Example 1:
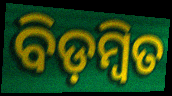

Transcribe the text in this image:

ବିଡ଼ମ୍ବିତ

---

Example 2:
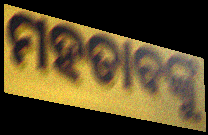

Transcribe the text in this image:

ମହତାବଙ୍କୁ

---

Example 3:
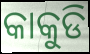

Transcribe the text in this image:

କାକୁଡି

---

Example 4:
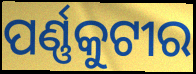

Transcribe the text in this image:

ପର୍ଣ୍ଣକୁଟୀର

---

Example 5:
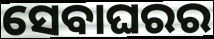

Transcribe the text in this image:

ସେବାଘରର